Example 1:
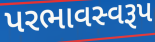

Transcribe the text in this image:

પરભાવસ્વરૂપ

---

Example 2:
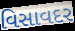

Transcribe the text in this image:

વિસાવદર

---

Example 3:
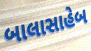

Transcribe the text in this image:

બાલાસાહેબ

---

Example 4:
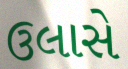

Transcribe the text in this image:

ઉલાસે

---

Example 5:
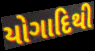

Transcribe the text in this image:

યોગાદિથી